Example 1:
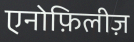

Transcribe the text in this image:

एनोफ़िलीज़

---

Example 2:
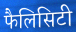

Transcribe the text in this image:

फैलिसिटी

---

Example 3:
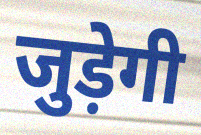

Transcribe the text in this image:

जुड़ेगी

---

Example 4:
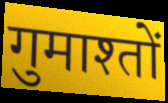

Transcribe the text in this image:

गुमाश्तों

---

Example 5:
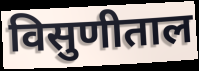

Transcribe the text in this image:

विसुणीताल